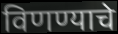
विणण्याचे